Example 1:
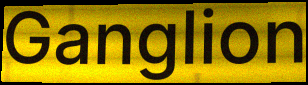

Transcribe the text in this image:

Ganglion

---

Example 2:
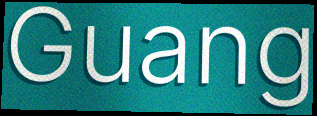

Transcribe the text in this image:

Guang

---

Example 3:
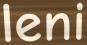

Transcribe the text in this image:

leni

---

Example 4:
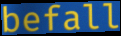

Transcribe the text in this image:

befall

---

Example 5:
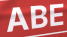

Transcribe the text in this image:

ABE